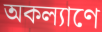
অকল্যাণে